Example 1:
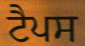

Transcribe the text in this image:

ਟੈਪਸ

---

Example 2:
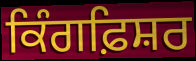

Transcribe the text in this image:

ਕਿੰਗਫ਼ਿਸ਼ਰ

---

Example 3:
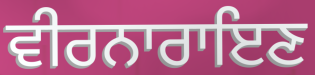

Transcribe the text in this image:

ਵੀਰਨਾਰਾਇਣ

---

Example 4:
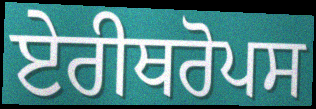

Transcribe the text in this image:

ਏਰੀਥਰੋਪਸ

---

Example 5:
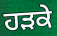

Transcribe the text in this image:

ਹੜਕੇ